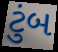
ટુંબ